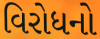
વિરોધનો